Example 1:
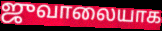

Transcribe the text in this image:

ஜுவாலையாக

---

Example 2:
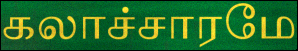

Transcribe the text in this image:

கலாச்சாரமே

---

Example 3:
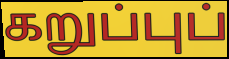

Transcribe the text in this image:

கறுப்புப்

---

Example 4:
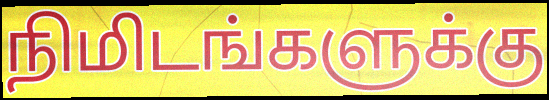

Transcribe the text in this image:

நிமிடங்களுக்கு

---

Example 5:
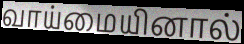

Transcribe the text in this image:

வாய்மையினால்